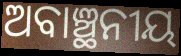
ଅବାଞ୍ଛନୀୟ